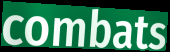
combats